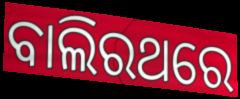
ବାଲିରଥରେ